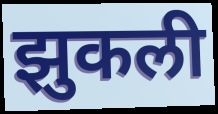
झुकली